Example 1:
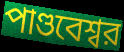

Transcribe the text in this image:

পাণ্ডবেশ্বর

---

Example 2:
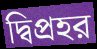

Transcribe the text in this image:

দ্বিপ্রহর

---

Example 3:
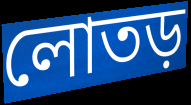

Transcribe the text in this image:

লোতড়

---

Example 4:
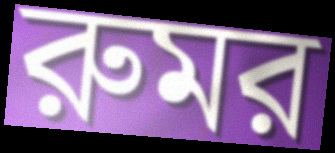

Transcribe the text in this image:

রুমর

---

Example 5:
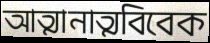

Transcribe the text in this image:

আত্মানাত্মবিবেক